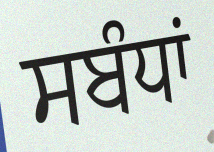
ਸਬੰਧਾਂ